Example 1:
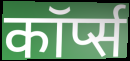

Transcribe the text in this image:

कॉर्प्स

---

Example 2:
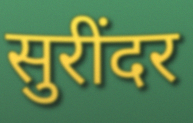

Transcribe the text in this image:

सुरींदर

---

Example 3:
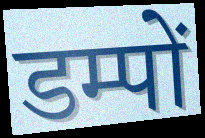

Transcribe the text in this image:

डम्पों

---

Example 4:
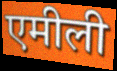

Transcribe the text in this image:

एमीली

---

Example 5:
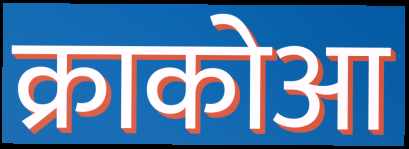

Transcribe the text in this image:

क्राकोआ